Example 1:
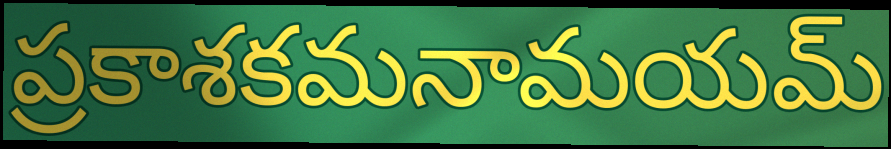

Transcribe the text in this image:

ప్రకాశకమనామయమ్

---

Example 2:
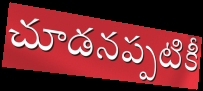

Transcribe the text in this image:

చూడనప్పటికీ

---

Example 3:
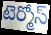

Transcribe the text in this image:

టెర్మోస్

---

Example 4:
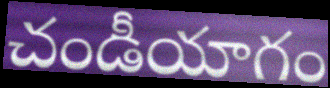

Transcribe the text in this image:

చండీయాగం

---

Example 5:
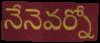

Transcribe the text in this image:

నేనెవర్నో